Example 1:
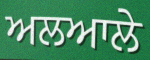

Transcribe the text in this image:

ਅਲਆਲੇ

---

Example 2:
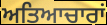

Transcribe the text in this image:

ਅਤਿਆਚਾਰਾਂ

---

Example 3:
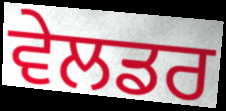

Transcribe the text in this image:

ਵੇਲਡਰ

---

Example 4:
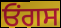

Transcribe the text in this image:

ਓਂਗਸ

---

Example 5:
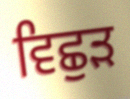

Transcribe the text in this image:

ਵਿਛੁੜ